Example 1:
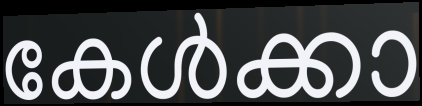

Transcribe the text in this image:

കേൾക്കാ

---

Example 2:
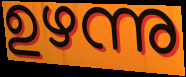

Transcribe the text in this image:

ഉഴന്നു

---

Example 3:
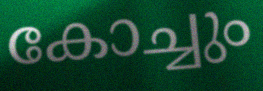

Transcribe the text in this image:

കോച്ചും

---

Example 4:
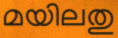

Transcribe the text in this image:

മയിലതു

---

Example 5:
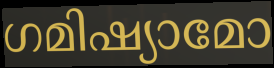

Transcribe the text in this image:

ഗമിഷ്യാമോ